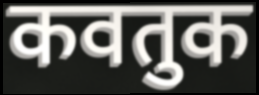
कवतुक